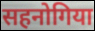
सहनोगिया